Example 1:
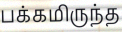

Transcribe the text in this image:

பக்கமிருந்த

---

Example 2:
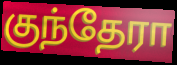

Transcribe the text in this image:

குந்தேரா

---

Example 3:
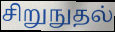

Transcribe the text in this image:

சிறுநுதல்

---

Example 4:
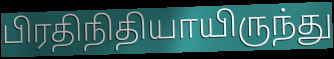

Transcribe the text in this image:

பிரதிநிதியாயிருந்து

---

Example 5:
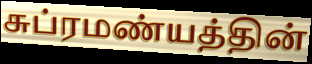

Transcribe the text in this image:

சுப்ரமண்யத்தின்